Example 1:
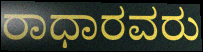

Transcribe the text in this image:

ರಾಧಾರವರು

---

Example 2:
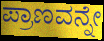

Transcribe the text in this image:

ಪ್ರಾಣವನ್ನೇ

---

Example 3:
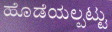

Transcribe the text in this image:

ಹೊಡೆಯಲ್ಪಟ್ಟು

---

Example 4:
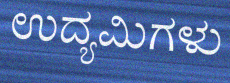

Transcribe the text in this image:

ಉದ್ಯಮಿಗಳು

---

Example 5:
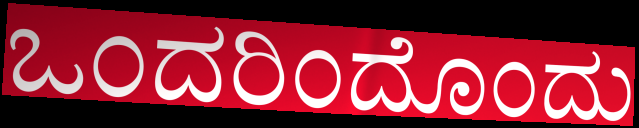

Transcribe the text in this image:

ಒಂದರಿಂದೊಂದು